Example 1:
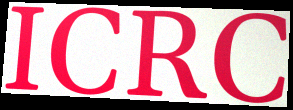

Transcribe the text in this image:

ICRC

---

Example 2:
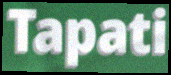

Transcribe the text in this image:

Tapati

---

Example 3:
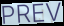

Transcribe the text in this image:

PREV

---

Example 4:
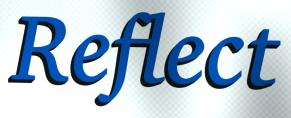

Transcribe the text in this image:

Reflect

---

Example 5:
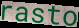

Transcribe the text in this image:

rasto